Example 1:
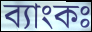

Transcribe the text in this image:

ব্যাংকঃ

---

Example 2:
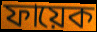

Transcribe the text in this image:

ফায়েক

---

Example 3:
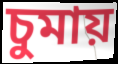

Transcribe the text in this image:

চুমায়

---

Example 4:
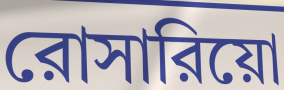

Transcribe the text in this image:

রোসারিয়ো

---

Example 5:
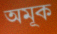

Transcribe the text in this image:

অমূক